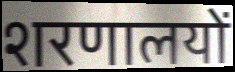
शरणालयों